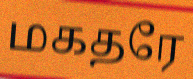
மகதரே